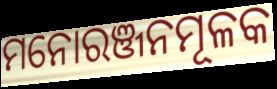
ମନୋରଞ୍ଜନମୂଳକ